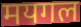
मयगल